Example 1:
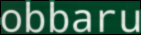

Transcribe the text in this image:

obbaru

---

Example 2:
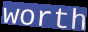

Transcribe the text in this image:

worth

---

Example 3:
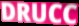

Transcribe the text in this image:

DRUCC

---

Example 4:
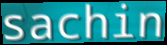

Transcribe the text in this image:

sachin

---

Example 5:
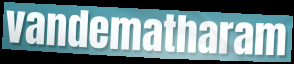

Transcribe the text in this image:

vandematharam